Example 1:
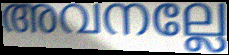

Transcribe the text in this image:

അവനല്ലേ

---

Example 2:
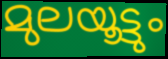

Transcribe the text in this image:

മുലയൂട്ടും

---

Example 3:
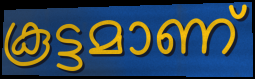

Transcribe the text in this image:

കൂട്ടമാണ്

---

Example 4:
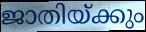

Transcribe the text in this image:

ജാതിയ്ക്കും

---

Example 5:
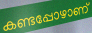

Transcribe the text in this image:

കണ്ടപ്പോഴാണ്